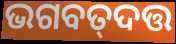
ଭଗବତ୍‌ଦତ୍ତ